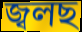
জ্বলছ